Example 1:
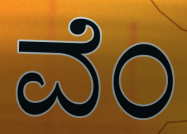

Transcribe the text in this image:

ವೆಂ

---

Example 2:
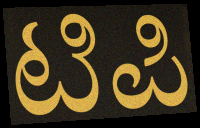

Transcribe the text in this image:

ಟಿಪಿ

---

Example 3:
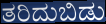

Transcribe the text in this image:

ತರಿದುಬಿಡು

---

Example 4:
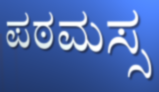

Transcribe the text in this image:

ಪಠಮಸ್ಸ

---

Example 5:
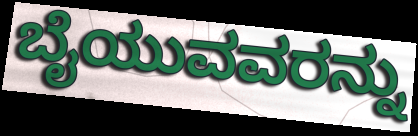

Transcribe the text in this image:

ಬೈಯುವವರನ್ನು